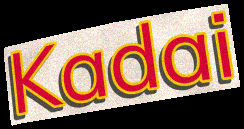
Kadai